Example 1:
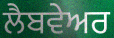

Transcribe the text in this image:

ਲੈਬਵੇਅਰ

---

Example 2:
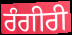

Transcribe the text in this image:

ਰੰਗੀਰੀ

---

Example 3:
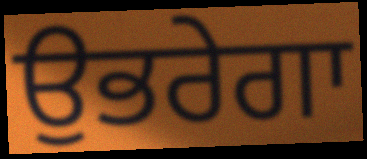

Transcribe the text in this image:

ਉਭਰੇਗਾ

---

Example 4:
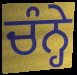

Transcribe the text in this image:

ਚੰਨ੍ਹੇ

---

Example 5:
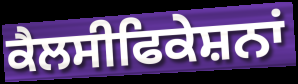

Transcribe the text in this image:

ਕੈਲਸੀਫਿਕੇਸ਼ਨਾਂ